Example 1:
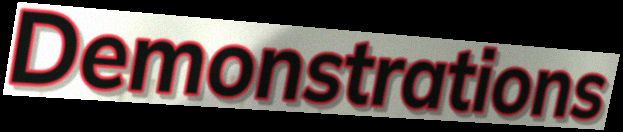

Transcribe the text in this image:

Demonstrations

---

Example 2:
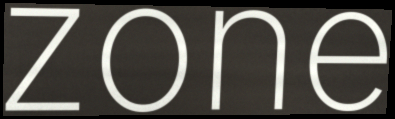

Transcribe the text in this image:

zone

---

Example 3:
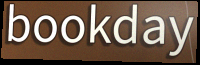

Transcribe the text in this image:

bookday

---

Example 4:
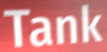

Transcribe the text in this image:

Tank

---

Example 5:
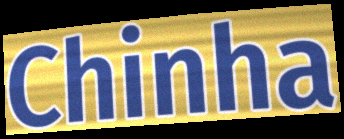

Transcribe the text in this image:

Chinha